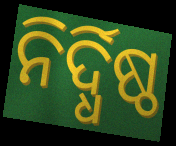
ନିର୍ଦ୍ଧିଷ୍ଠ